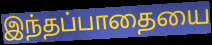
இந்தப்பாதையை